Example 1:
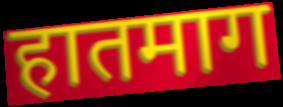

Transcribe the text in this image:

हातमाग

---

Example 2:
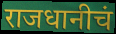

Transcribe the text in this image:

राजधानीचं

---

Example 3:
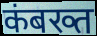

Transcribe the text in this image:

कंबख्त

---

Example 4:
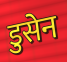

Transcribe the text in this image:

डुसेन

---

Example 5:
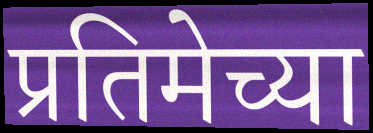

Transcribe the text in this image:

प्रतिमेच्या